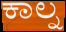
ಕಾಲ್ನ